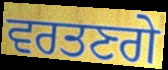
ਵਰਤਣਗੇ